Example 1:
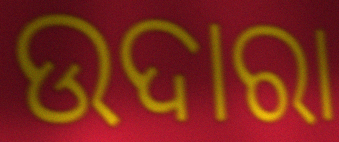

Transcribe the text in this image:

ଉଦାରା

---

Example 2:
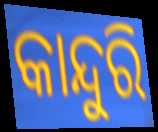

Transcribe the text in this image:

କାନ୍ଦୁରି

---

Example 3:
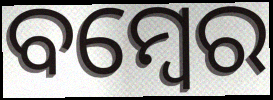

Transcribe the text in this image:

ବମ୍ୱେର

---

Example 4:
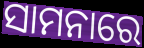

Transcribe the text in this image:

ସାମନାରେ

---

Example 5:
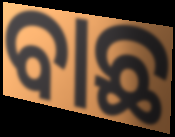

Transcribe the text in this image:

ବାଛ